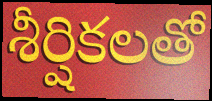
శీర్షికలతో